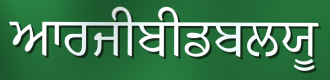
ਆਰਜੀਬੀਡਬਲਯੂ